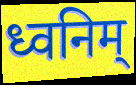
ध्वनिम्